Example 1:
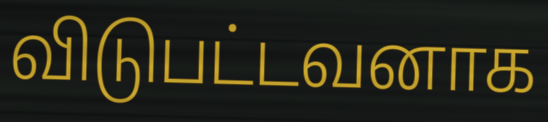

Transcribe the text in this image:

விடுபட்டவனாக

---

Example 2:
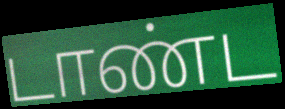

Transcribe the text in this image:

டாண்ட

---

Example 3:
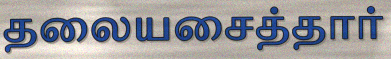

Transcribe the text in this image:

தலையசைத்தார்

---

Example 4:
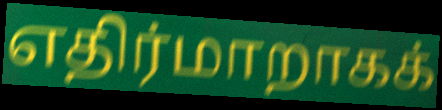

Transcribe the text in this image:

எதிர்மாறாகக்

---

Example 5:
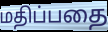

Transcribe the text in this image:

மதிப்பதை